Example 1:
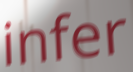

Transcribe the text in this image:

infer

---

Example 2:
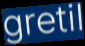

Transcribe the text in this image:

gretil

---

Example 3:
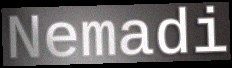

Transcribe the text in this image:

Nemadi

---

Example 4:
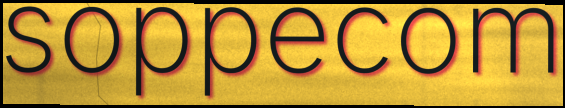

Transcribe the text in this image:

soppecom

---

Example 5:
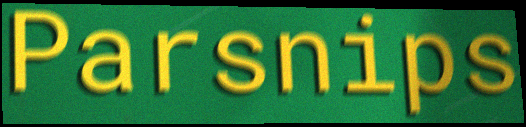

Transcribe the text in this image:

Parsnips